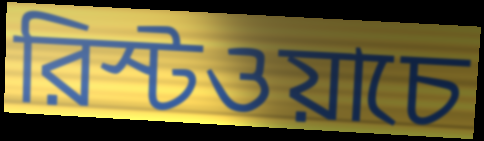
রিস্টওয়াচে